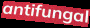
antifungal